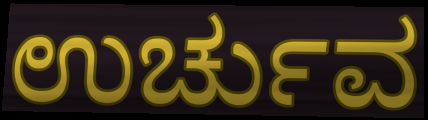
ಉರ್ಚುವ